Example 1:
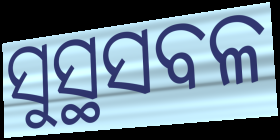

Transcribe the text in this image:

ସୁସ୍ଥସବଳ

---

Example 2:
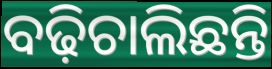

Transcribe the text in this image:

ବଢ଼ିଚାଲିଛନ୍ତି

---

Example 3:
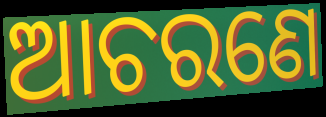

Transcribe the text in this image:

ଆଚରଣେ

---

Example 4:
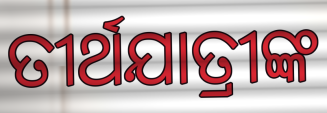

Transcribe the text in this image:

ତୀର୍ଥଯାତ୍ରୀଙ୍କ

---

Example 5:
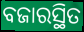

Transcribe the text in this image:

ବଜାରସ୍ଥିତ